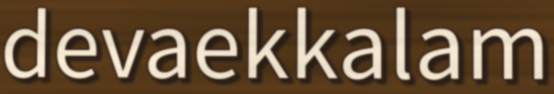
devaekkalam